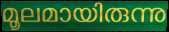
മൂലമായിരുന്നു